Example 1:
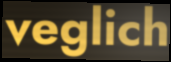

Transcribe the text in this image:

veglich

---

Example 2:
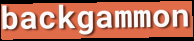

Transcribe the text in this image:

backgammon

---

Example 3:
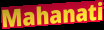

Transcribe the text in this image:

Mahanati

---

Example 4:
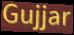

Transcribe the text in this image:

Gujjar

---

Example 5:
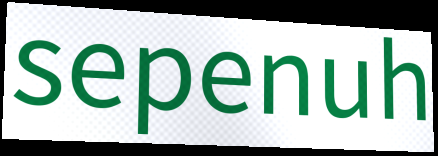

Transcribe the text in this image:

sepenuh